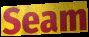
Seam